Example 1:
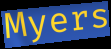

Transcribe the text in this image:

Myers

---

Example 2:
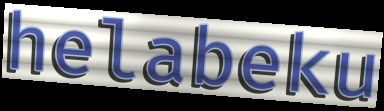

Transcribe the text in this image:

helabeku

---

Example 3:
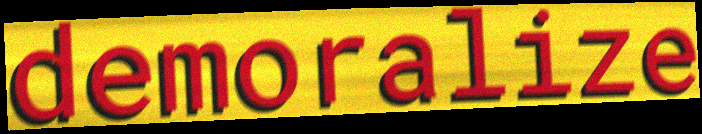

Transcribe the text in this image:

demoralize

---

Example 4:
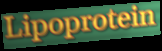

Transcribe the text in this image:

Lipoprotein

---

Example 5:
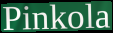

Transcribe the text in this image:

Pinkola